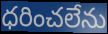
ధరించలేను